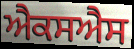
ਐਕਸਐਸ